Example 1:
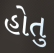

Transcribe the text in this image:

હોતુ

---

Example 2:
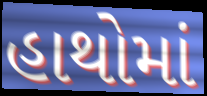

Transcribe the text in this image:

હાથોમાં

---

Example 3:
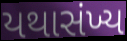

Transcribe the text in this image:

યથાસંખ્ય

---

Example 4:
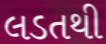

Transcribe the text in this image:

લડતથી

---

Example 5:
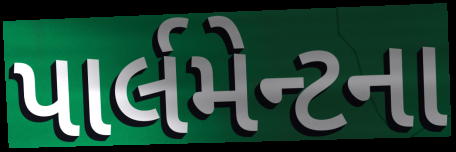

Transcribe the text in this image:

પાર્લમેન્ટના